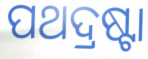
ପଥଦ୍ରଷ୍ଟା